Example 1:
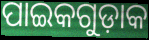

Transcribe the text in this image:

ପାଇକଗୁଡ଼ାକ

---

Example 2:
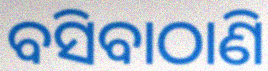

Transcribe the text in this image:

ବସିବାଠାଣି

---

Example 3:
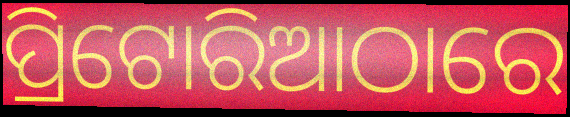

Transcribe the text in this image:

ପ୍ରିଟୋରିଆଠାରେ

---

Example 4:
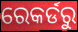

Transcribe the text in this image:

ରେକର୍ଡରୁ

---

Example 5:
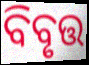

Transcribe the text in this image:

ବିବୃତ୍ତ